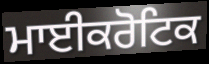
ਮਾਈਕਰੋਟਿਕ